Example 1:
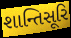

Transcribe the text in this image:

શાન્તિસૂરિ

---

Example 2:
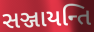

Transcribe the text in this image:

સઞ્જાયન્તિ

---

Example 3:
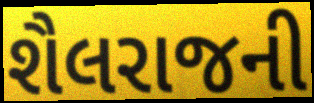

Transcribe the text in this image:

શૈલરાજની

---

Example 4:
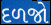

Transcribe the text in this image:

દળજો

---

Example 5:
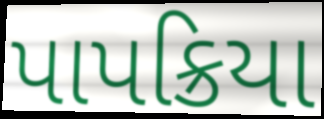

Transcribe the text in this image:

પાપક્રિયા